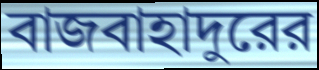
বাজবাহাদুরের